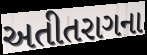
અતીતરાગના